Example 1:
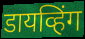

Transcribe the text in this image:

डायव्हिंग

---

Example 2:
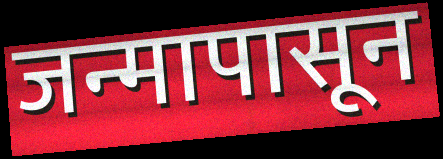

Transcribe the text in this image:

जन्मापासून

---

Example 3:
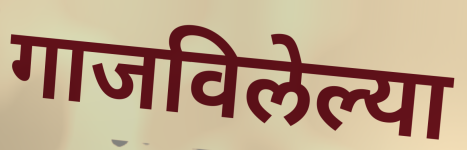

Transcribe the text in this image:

गाजविलेल्या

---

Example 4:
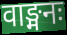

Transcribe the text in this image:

वाङ्मनः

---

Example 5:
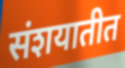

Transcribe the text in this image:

संशयातीत